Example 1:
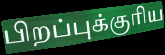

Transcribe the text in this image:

பிறப்புக்குரிய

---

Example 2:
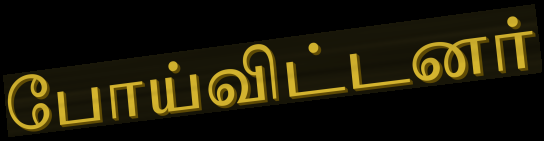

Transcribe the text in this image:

போய்விட்டனர்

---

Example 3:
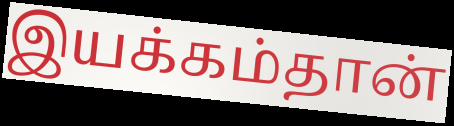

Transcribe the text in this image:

இயக்கம்தான்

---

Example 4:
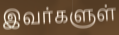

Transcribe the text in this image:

இவர்களுள்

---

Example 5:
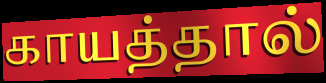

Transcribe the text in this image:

காயத்தால்